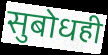
सुबोधही